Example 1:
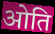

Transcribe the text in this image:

ओति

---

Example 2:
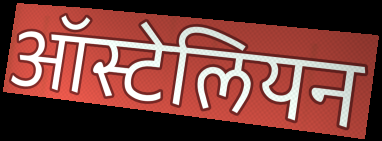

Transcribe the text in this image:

ऑस्टेलियन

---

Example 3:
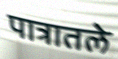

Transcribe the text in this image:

पात्रातले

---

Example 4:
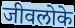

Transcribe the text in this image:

जीवलोके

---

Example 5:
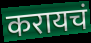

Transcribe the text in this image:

करायचं